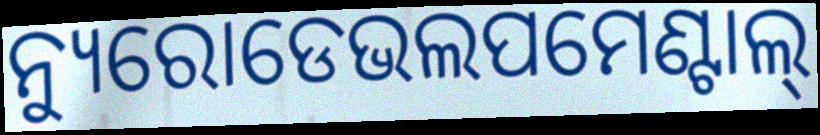
ନ୍ୟୁରୋଡେଭଲପମେଣ୍ଟାଲ୍